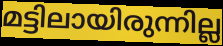
മട്ടിലായിരുന്നില്ല